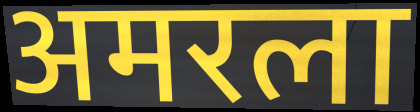
अमरला